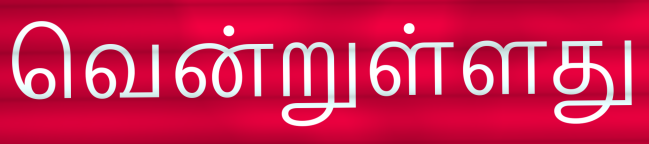
வென்றுள்ளது